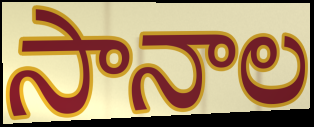
సానాల